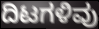
ದಿಟಗಳಿವು